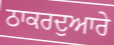
ਠਾਕਰਦੁਆਰੇ